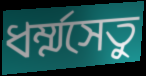
ধর্ম্মসেতু